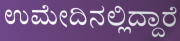
ಉಮೇದಿನಲ್ಲಿದ್ದಾರೆ